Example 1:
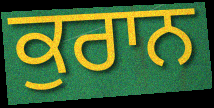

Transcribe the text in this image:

ਕੁਰਾਨ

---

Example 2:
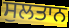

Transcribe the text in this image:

ਸੁਲਤਾਨ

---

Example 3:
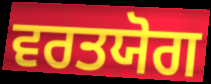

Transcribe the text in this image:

ਵਰਤਯੋਗ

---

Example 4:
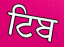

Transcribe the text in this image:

ਟਿਬ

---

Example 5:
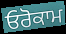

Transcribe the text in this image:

ਓਰੋਕਾਮ